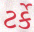
ટર્કે